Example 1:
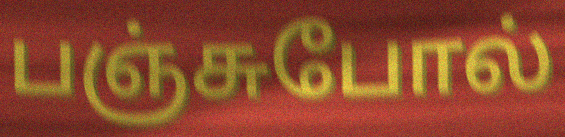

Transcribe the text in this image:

பஞ்சுபோல்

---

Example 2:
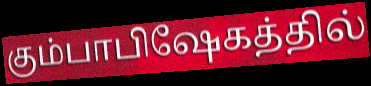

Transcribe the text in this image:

கும்பாபிஷேகத்தில்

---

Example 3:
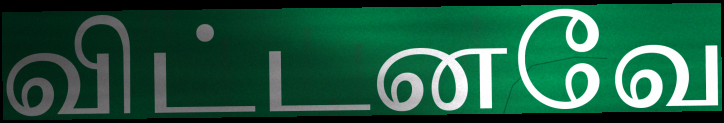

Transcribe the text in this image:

விட்டனவே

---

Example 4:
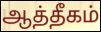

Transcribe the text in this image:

ஆத்தீகம்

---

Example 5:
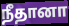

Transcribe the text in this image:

நீதானா